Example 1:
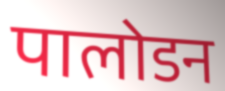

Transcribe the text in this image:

पालोडन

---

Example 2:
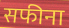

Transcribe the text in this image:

सफीना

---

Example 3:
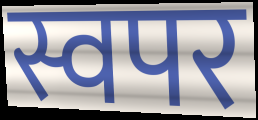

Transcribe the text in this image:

स्वपर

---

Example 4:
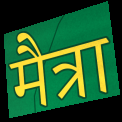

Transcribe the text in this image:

मैत्रा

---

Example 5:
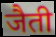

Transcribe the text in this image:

जैती